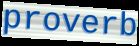
proverb